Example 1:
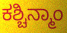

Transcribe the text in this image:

ಕಶ್ಚಿನ್ಮಾಂ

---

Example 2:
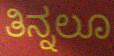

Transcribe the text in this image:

ತಿನ್ನಲೂ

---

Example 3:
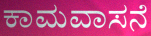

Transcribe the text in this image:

ಕಾಮವಾಸನೆ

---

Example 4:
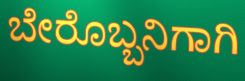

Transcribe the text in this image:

ಬೇರೊಬ್ಬನಿಗಾಗಿ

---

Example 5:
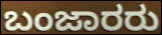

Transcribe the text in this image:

ಬಂಜಾರರು